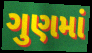
ગુણમાં